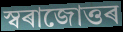
স্বৰাজোত্তৰ